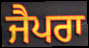
ਜੈਪਰਾ